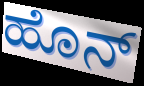
ಹೊನ್